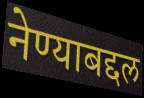
नेण्याबद्दल